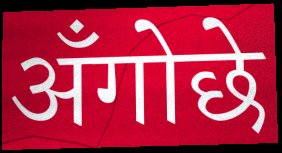
अँगोछे